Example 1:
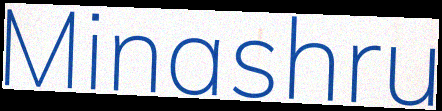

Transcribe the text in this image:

Minashru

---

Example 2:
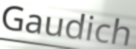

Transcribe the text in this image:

Gaudich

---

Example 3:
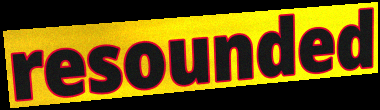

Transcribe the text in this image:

resounded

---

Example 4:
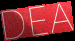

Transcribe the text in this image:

DEA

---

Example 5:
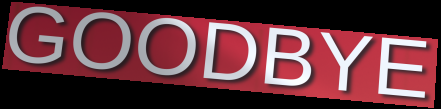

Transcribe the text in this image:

GOODBYE